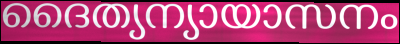
ദൈത്യന്യായാസനം